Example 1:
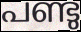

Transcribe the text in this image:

പണ്ടു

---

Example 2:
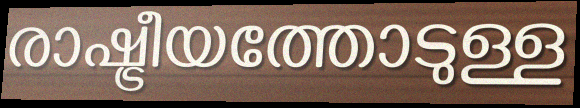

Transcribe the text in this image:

രാഷ്ട്രീയത്തോടുള്ള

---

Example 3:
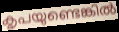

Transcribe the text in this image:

കൃപയുണ്ടെങ്കിൽ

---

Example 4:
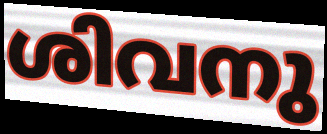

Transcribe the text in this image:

ശിവനു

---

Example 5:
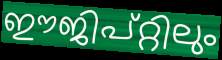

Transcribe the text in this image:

ഈജിപ്റ്റിലും